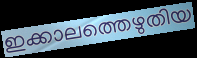
ഇക്കാലത്തെഴുതിയ